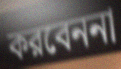
করবেননা